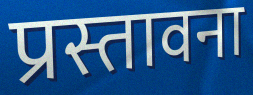
प्रस्तावना